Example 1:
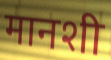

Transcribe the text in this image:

मानशी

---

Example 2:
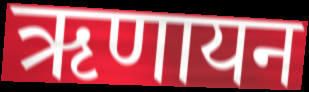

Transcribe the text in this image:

ऋणायन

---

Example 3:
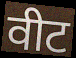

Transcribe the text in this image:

वीट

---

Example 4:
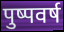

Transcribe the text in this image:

पुष्पवर्ष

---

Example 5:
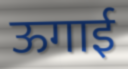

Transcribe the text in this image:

ऊगाई